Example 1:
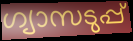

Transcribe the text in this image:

ഗ്യാസടുപ്പ്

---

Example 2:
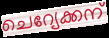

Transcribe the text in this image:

ചെറ്യേക്കന്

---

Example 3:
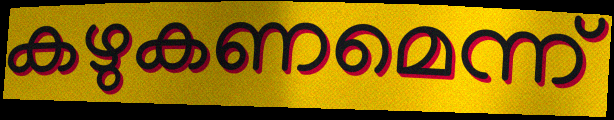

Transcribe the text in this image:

കഴുകണമെന്ന്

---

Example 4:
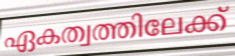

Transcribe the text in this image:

ഏകത്വത്തിലേക്ക്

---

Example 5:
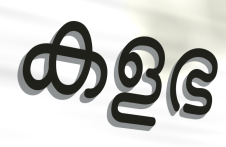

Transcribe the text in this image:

കളഭ